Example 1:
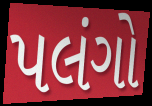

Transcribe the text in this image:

પલંગો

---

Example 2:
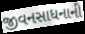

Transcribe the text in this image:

જીવનસાધનાની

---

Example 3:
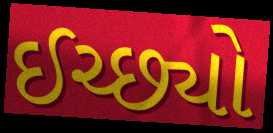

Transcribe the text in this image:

ઈચ્છ્યો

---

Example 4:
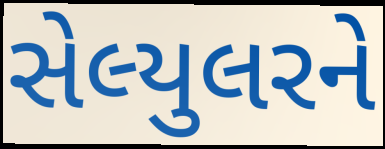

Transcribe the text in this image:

સેલ્યુલરને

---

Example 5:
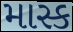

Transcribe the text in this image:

માસ્ક